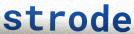
strode